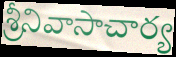
శ్రీనివాసాచార్య